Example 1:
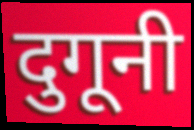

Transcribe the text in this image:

दुगूनी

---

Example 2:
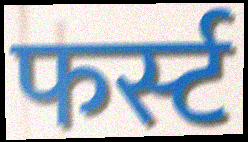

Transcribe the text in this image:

फर्स्‍ट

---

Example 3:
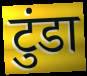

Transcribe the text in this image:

टुंडा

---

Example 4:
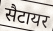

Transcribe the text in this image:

सैटायर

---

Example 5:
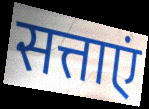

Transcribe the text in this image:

सत्ताएं